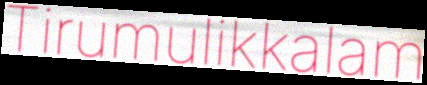
Tirumulikkalam